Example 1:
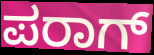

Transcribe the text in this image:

ಪರಾಗ್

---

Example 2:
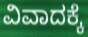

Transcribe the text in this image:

ವಿವಾದಕ್ಕೆ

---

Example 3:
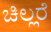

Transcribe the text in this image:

ಚಿಲ್ಲರೆ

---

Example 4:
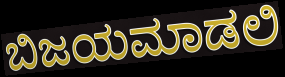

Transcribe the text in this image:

ಬಿಜಯಮಾಡಲಿ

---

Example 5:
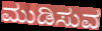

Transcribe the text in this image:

ಮುಡಿಸುವ